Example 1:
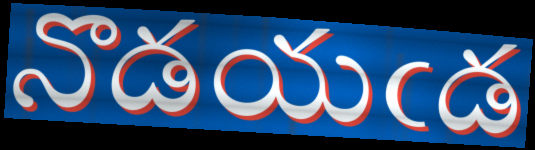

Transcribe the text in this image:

నొడయఁడ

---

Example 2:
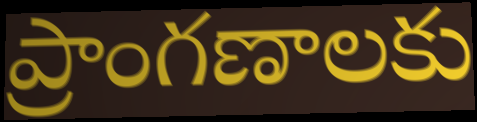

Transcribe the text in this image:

ప్రాంగణాలకు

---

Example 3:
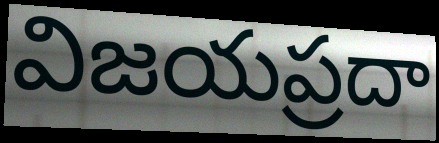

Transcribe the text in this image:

విజయప్రదా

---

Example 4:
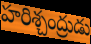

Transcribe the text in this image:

హరిశ్చంద్రుడు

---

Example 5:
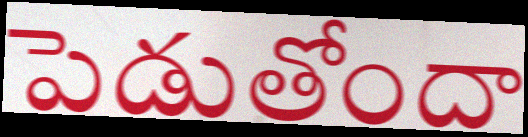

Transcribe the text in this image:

పెడుతోందా